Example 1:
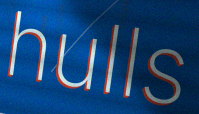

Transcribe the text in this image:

hulls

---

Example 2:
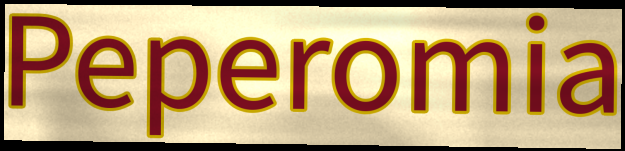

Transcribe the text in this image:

Peperomia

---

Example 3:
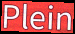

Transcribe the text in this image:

Plein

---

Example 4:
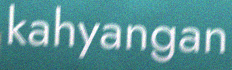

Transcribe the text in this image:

kahyangan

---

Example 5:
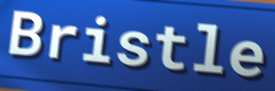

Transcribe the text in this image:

Bristle